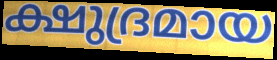
ക്ഷുദ്രമായ